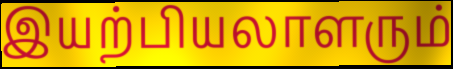
இயற்பியலாளரும்